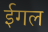
ईगल